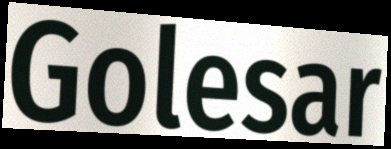
Golesar